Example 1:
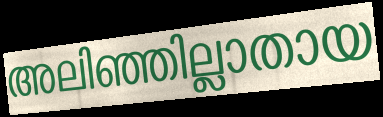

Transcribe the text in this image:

അലിഞ്ഞില്ലാതായ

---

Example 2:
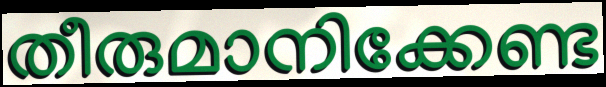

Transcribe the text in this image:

തീരുമാനിക്കേണ്ട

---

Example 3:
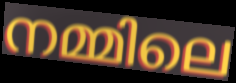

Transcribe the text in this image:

നമ്മിലെ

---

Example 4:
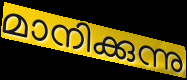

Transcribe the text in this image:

മാനിക്കുന്നു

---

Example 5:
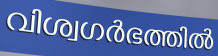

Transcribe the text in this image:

വിശ്വഗർഭത്തിൽ